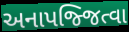
અનાપજ્જિત્વા